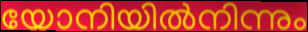
യോനിയിൽനിന്നും